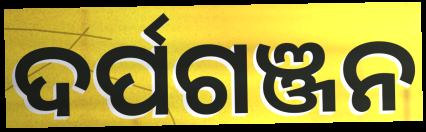
ଦର୍ପଗଞ୍ଜନ